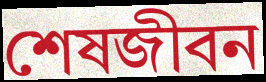
শেষজীবন